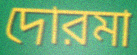
দোরমা